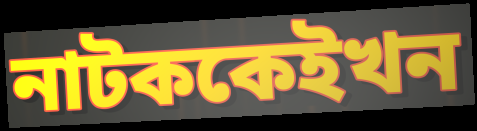
নাটককেইখন